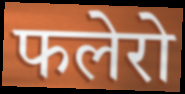
फलेरो